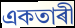
একতাৰী